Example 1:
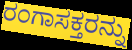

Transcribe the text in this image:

ರಂಗಾಸಕ್ತರನ್ನು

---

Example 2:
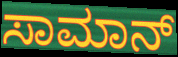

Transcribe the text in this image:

ಸಾಮಾನ್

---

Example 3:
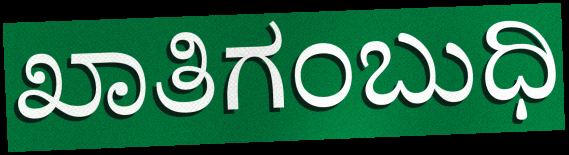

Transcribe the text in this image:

ಖಾತಿಗಂಬುಧಿ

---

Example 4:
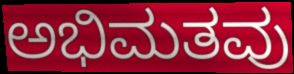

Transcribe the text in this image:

ಅಭಿಮತವು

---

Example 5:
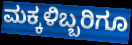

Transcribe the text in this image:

ಮಕ್ಕಳಿಬ್ಬರಿಗೂ